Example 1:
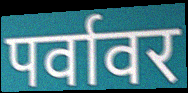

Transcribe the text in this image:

पर्वावर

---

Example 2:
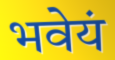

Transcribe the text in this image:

भवेयं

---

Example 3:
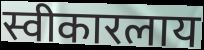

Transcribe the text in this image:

स्वीकारलाय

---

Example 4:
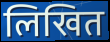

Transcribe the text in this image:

लिखित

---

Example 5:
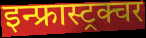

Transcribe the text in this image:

इन्फ्रास्ट्रक्‍चर